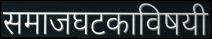
समाजघटकाविषयी